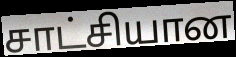
சாட்சியான